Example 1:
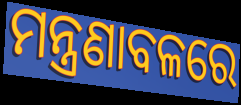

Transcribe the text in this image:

ମନ୍ତ୍ରଣାବଳରେ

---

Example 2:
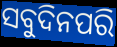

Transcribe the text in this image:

ସବୁଦିନପରି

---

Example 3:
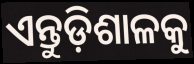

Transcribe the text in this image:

ଏନ୍ତୁଡ଼ିଶାଳକୁ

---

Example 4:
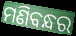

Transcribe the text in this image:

ମଣିବନ୍ଧର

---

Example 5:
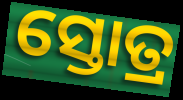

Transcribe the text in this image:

ସ୍ତୋତ୍ର